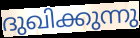
ദുഖിക്കുന്നു